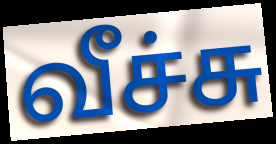
வீச்சு